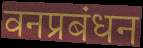
वनप्रबंधन